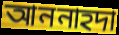
আননাহদা